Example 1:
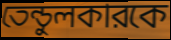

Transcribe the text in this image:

তেন্ডুলকারকে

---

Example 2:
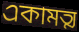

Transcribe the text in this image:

একামত্ম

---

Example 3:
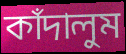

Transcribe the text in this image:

কাঁদালুম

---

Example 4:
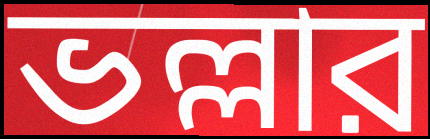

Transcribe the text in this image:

ভল্লার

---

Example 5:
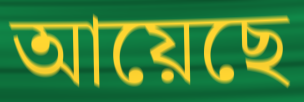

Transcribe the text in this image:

আয়েছে